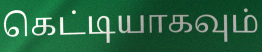
கெட்டியாகவும்